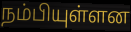
நம்பியுள்ளன